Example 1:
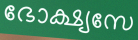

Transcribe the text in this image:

ഭോക്ഷ്യസേ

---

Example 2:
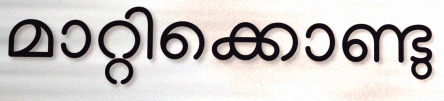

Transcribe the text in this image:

മാറ്റിക്കൊണ്ടു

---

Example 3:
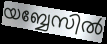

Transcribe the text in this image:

യബ്ബേസിൽ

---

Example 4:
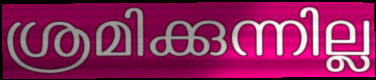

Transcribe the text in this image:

ശ്രമിക്കുന്നില്ല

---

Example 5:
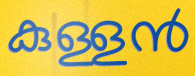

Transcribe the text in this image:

കുള്ളൻ